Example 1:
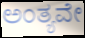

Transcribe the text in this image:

ಅಂತ್ಯವೇ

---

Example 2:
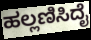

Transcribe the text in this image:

ಹಲ್ಲಣಿಸಿದೈ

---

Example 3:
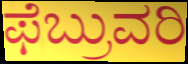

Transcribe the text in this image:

ಫೆಬ್ರುವರಿ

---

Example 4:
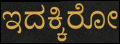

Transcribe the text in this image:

ಇದಕ್ಕಿರೋ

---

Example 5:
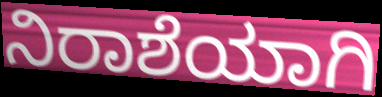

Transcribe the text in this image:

ನಿರಾಶೆಯಾಗಿ